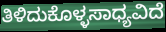
ತಿಳಿದುಕೊಳ್ಳಸಾಧ್ಯವಿದೆ